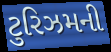
ટુરિઝમની